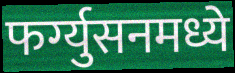
फर्ग्युसनमध्ये